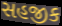
સહજીક